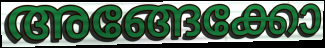
അങ്ങേക്കോ